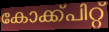
കോക്ക്പിറ്റ്